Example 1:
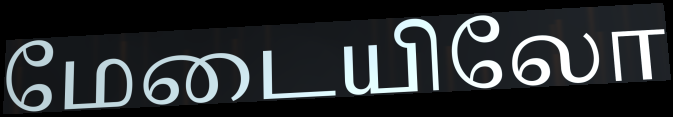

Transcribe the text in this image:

மேடையிலோ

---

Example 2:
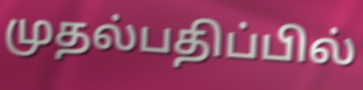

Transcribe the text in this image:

முதல்பதிப்பில்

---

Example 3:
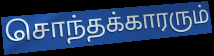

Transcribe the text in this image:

சொந்தக்காரரும்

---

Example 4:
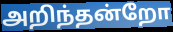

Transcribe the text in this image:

அறிந்தன்றோ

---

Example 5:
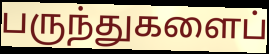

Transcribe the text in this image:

பருந்துகளைப்